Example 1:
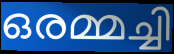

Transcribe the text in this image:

ഒരമ്മച്ചി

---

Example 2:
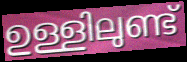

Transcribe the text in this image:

ഉള്ളിലുണ്ട്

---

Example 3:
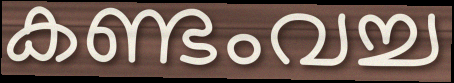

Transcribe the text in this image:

കണ്ടംവച്ച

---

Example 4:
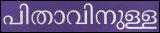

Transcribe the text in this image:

പിതാവിനുള്ള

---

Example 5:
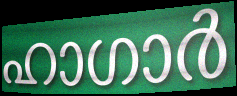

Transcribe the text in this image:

ഹാഗാർ